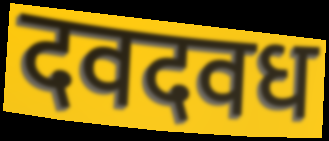
दवदवध